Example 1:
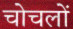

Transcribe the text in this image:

चोचलों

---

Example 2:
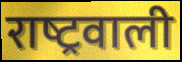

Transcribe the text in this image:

राष्ट्रवाली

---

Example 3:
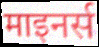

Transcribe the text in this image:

माइनर्स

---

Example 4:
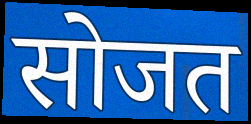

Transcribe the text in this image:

सोजत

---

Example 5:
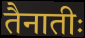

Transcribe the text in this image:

तैनातीः